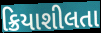
ક્રિયાશીલતા